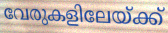
വേരുകളിലേയ്ക്ക്